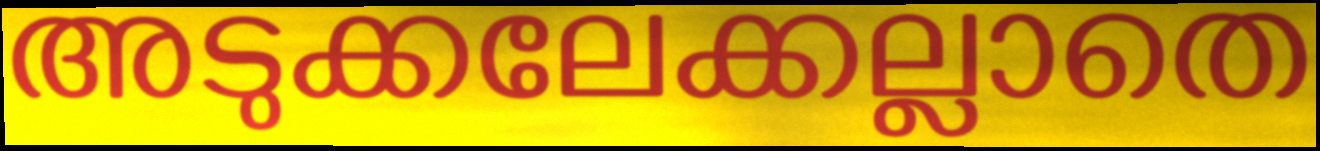
അടുക്കലേക്കല്ലാതെ